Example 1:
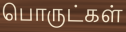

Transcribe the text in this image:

பொருட்கள்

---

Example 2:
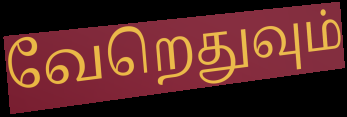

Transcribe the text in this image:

வேறெதுவும்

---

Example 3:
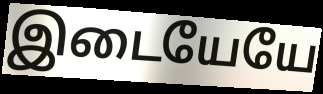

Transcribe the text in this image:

இடையேயே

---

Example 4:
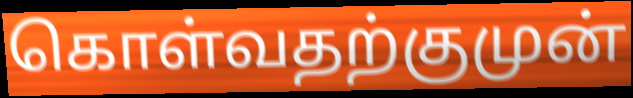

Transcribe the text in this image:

கொள்வதற்குமுன்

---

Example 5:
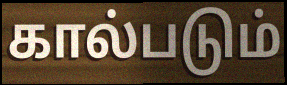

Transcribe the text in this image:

கால்படும்